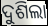
ଦୁଶିଲା